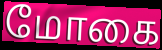
மோகை